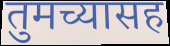
तुमच्यासह